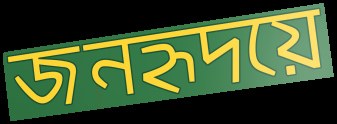
জনহৃদয়ে